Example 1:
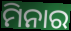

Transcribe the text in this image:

ମିନାର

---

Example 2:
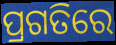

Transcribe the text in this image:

ପ୍ରଗତିରେ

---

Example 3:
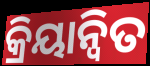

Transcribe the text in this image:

କ୍ରିୟାନ୍ୱିତ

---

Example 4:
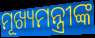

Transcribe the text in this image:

ମୂଖ୍ୟମନ୍ତ୍ରୀଙ୍କ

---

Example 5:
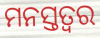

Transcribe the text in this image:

ମନସ୍ତତ୍ଵର